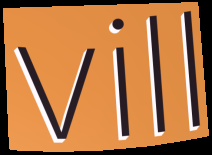
vill